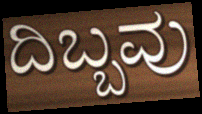
ದಿಬ್ಬವು